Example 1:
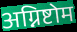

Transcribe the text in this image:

अग्निष्टोम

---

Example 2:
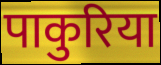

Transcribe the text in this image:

पाकुरिया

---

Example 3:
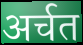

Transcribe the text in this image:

अर्चत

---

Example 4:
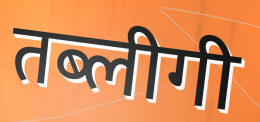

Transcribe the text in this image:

तब्लीगी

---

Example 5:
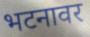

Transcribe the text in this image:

भटनावर